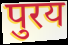
पुरय